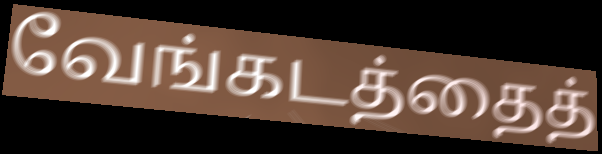
வேங்கடத்தைத்